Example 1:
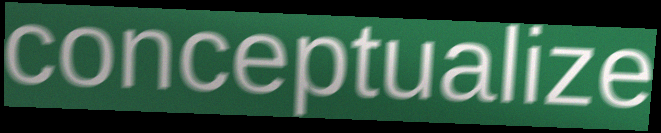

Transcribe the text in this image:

conceptualize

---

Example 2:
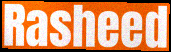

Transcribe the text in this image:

Rasheed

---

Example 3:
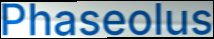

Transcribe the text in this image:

Phaseolus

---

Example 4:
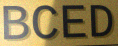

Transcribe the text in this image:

BCED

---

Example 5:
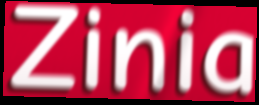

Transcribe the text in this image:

Zinia